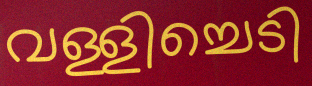
വള്ളിച്ചെടി